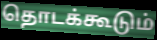
தொடக்கூடும்